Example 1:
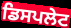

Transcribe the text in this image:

ਡਿਸਪਲੇਟ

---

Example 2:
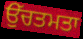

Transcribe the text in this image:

ਉੱਚਤਮਤਾ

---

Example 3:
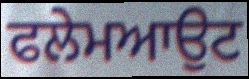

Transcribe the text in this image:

ਫਲੇਮਆਉਟ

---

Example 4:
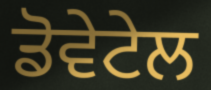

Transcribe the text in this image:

ਡੋਵੇਟੇਲ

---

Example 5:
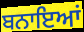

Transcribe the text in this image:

ਬਨਾਇਆਂ